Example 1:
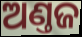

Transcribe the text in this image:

ଅଣ୍ତଜ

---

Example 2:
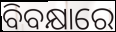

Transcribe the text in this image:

ବିବକ୍ଷାରେ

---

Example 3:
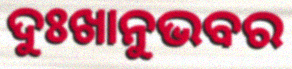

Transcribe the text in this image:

ଦୁଃଖାନୁଭବର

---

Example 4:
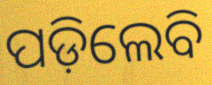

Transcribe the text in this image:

ପଡ଼ିଲେବି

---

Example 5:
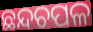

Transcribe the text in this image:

ଛନ୍ଦଚପଳ